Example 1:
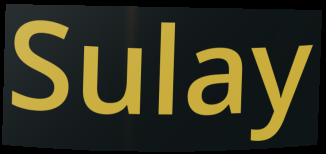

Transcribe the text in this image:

Sulay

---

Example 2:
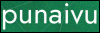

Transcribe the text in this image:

punaivu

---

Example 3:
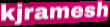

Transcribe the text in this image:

kjramesh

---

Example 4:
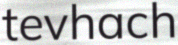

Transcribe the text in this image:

tevhach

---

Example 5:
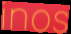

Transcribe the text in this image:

inos